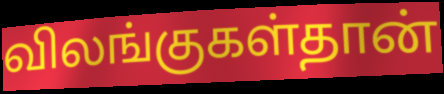
விலங்குகள்தான்